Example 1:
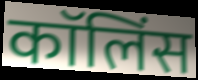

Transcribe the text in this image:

कॉलिंस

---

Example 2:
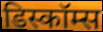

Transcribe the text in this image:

डिस्कॉम्स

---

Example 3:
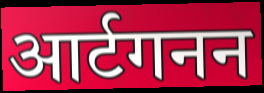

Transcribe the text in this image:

आर्टगनन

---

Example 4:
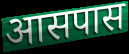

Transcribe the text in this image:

आसपास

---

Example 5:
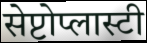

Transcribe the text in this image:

सेप्टोप्लास्टी